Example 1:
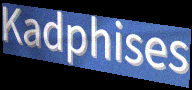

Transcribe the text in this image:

Kadphises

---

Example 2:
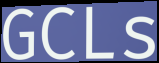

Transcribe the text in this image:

GCLs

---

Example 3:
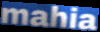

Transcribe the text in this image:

mahia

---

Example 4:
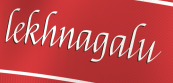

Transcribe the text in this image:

lekhnagalu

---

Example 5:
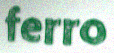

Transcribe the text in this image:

ferro